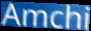
Amchi